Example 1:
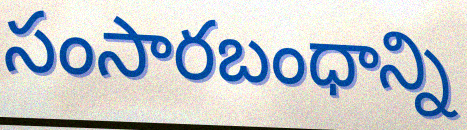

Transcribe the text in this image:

సంసారబంధాన్ని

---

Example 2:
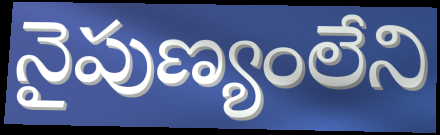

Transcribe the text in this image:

నైపుణ్యంలేని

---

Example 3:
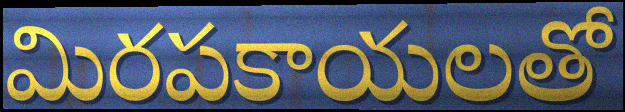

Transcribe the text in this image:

మిరపకాయలతో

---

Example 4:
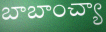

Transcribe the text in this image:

బాబాంచ్యా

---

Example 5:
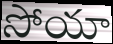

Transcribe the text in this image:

సోయా